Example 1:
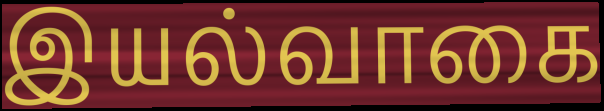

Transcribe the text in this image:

இயல்வாகை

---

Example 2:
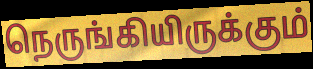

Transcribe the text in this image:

நெருங்கியிருக்கும்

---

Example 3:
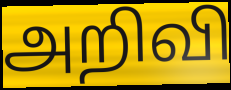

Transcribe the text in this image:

அறிவி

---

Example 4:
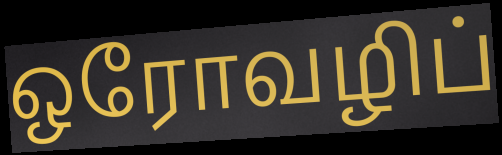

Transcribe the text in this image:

ஒரோவழிப்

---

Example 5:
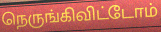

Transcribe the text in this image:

நெருங்கிவிட்டோம்